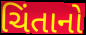
ચિંતાનો